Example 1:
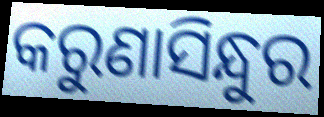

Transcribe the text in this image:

କରୁଣାସିନ୍ଧୁର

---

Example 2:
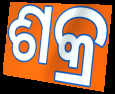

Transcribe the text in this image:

ଶକ୍ର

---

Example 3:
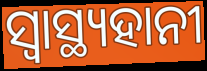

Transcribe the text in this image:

ସ୍ବାସ୍ଥ୍ୟହାନୀ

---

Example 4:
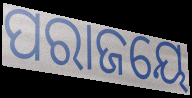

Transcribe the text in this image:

ପରାଜୟେ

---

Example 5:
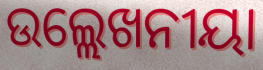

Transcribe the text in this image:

ଉଲ୍ଲେଖନୀୟା